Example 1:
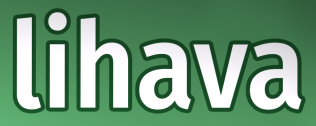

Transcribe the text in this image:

lihava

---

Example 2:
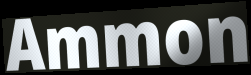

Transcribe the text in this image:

Ammon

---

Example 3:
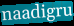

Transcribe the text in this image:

naadigru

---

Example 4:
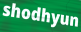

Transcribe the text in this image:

shodhyun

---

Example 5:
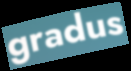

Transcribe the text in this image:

gradus